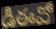
డీఈవో